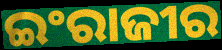
ଇଂରାଜୀର